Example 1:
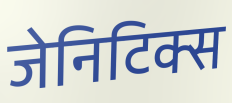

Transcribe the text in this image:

जेनिटिक्स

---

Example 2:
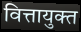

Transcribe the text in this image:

वित्तायुक्त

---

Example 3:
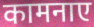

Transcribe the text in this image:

कामनाए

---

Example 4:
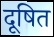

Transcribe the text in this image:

दूषित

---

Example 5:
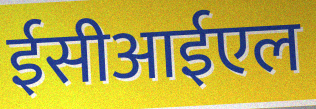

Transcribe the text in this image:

ईसीआईएल